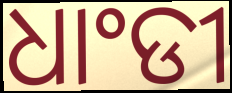
ଧାଂଡୀ